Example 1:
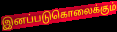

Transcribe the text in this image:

இனப்படுகொலைக்கும்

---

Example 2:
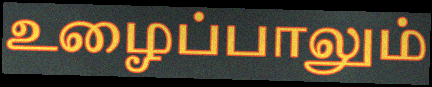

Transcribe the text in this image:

உழைப்பாலும்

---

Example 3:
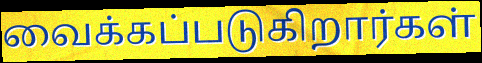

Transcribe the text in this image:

வைக்கப்படுகிறார்கள்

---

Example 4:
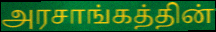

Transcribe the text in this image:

அரசாங்கத்தின்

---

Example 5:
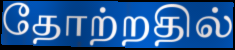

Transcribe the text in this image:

தோற்றதில்